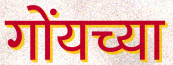
गोंयच्या